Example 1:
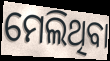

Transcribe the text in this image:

ମେଲିଥିବା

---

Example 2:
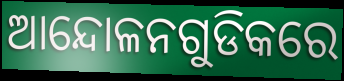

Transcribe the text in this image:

ଆନ୍ଦୋଳନଗୁଡିକରେ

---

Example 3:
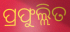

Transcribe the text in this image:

ପ୍ରଫୁଲ୍ଲିତ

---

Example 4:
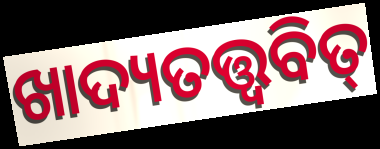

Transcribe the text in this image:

ଖାଦ୍ୟତତ୍ତ୍ୱବିତ୍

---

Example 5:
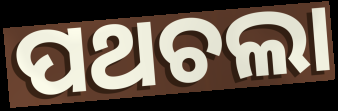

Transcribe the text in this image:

ପଥଚଲା